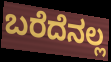
ಬರೆದೆನಲ್ಲ